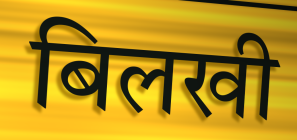
बिलखी